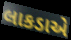
લાકડાએ